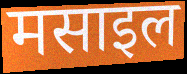
मसाइल